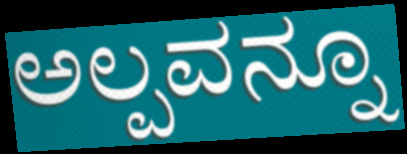
ಅಲ್ಪವನ್ನೂ